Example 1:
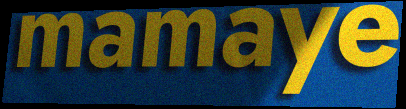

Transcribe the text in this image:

mamaye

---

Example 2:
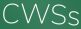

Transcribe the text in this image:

CWSs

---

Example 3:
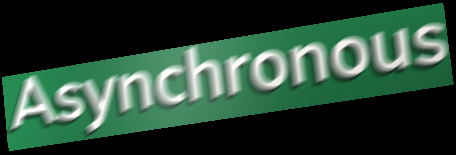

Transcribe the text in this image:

Asynchronous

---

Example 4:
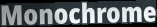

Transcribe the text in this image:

Monochrome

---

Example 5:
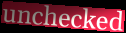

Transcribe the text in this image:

unchecked